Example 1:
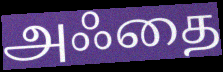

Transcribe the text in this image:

அஃதை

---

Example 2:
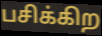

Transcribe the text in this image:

பசிக்கிற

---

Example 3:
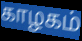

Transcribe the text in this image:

காழகம்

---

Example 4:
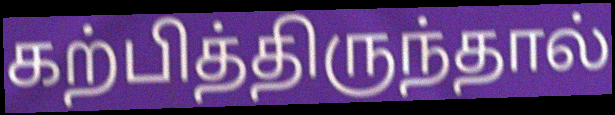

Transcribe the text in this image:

கற்பித்திருந்தால்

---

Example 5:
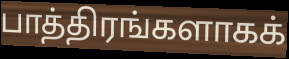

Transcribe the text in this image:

பாத்திரங்களாகக்